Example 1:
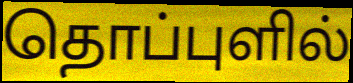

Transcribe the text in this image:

தொப்புளில்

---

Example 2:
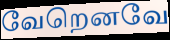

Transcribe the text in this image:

வேறெனவே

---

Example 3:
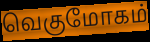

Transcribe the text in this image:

வெகுமோகம்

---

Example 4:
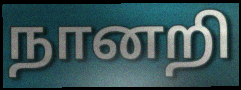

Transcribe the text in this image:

நானறி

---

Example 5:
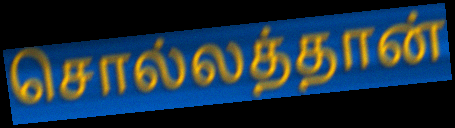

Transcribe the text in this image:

சொல்லத்தான்